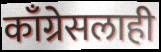
काँग्रेसलाही